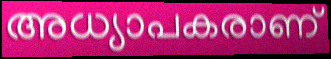
അധ്യാപകരാണ്